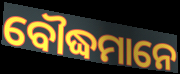
ବୌଦ୍ଧମାନେ